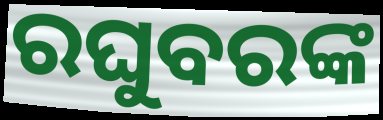
ରଘୁବରଙ୍କ